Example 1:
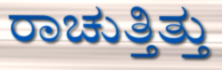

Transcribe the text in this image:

ರಾಚುತ್ತಿತ್ತು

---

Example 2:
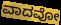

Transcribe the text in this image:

ವಾದವೋ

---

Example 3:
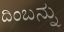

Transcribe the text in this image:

ದಿಂಬನ್ನು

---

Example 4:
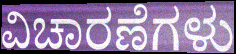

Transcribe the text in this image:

ವಿಚಾರಣೆಗಳು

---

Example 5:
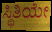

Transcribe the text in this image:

ಸ್ಥಿತಿಯೇ